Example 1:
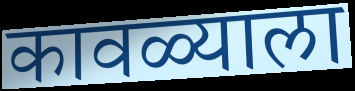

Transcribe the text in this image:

कावळ्याला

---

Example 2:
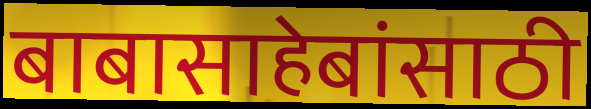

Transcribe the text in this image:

बाबासाहेबांसाठी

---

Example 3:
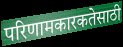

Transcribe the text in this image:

परिणामकारकतेसाठी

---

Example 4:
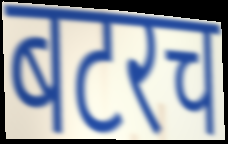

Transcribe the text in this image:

बटरच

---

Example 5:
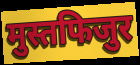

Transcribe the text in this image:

मुस्तफिजुर